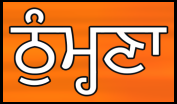
ਠੁੰਮ੍ਹਣਾ